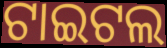
ଟାଇଟଲ